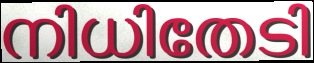
നിധിതേടി